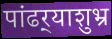
पांढर्याशुभ्र